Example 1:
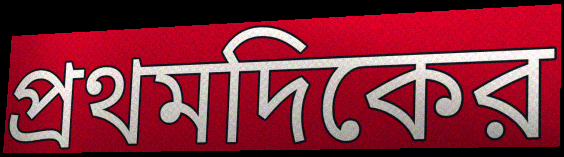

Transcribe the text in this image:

প্রথমদিকের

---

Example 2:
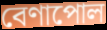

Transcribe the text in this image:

বেণাপোল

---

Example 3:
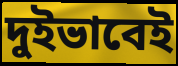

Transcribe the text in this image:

দুইভাবেই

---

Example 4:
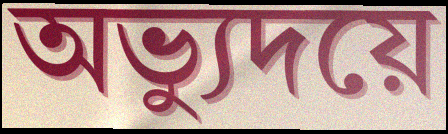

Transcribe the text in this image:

অভ্যুদয়ে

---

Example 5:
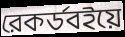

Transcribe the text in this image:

রেকর্ডবইয়ে